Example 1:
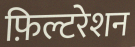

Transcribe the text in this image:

फ़िल्टरेशन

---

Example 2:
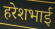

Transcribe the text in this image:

हरेशभाई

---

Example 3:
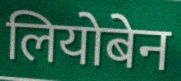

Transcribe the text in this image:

लियोबेन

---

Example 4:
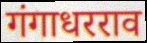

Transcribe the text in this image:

गंगाधरराव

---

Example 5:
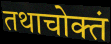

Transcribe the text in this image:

तथाचोक्तं